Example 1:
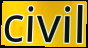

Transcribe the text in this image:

civil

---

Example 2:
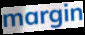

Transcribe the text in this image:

margin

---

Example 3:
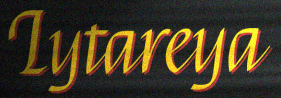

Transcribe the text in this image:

Iytareya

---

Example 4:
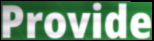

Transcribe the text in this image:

Provide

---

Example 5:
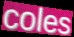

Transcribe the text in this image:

coles